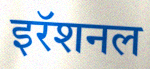
इरॅशनल